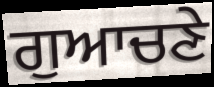
ਗੁਆਚਣੇ